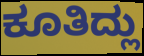
ಕೂತಿದ್ಲು